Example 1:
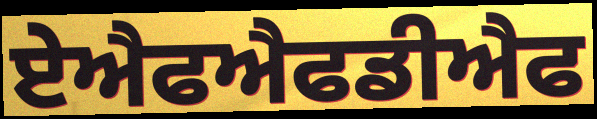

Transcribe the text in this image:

ਏਐਫਐਫਡੀਐਫ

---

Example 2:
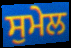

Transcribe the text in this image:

ਸੁਮੇਲ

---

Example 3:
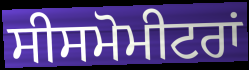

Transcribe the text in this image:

ਸੀਸਮੋਮੀਟਰਾਂ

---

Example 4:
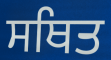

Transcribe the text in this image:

ਸਥਿਤ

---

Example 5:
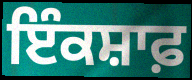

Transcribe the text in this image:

ਇੰਕਸ਼ਾਫ਼